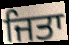
ਜਿਤਾ